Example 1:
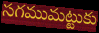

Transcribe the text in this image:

సగముమట్టుకు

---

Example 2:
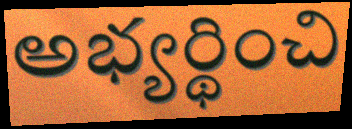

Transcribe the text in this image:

అభ్యర్థించి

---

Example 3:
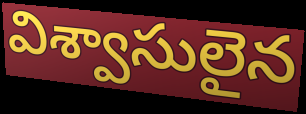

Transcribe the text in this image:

విశ్వాసులైన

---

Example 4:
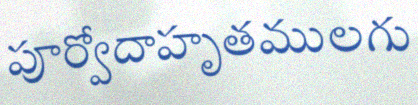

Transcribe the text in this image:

పూర్వోదాహృతములగు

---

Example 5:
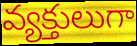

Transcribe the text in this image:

వ్యక్తులుగా